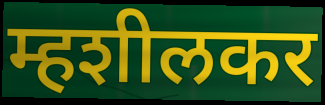
म्हशीलकर